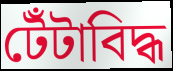
টেঁটাবিদ্ধ